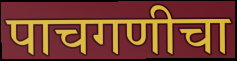
पाचगणीचा